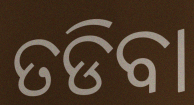
ତଡିବା